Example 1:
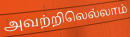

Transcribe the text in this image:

அவற்றிலெல்லாம்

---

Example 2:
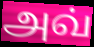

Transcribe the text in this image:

அவ்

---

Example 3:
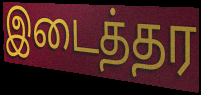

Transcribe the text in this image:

இடைத்தர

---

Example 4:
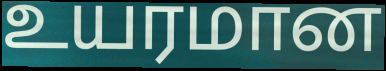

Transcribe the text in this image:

உயரமான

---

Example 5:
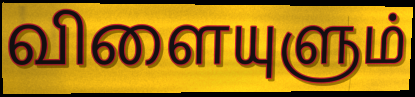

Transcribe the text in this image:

விளையுளும்